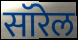
सॉरेल